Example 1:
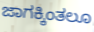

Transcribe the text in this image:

ಜಾಗಕ್ಕಿಂತಲೂ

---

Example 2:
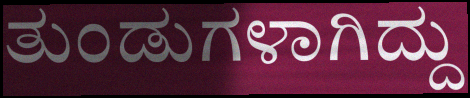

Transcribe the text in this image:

ತುಂಡುಗಳಾಗಿದ್ದು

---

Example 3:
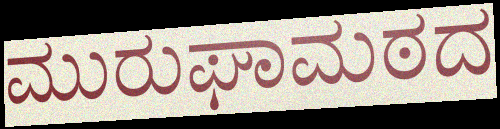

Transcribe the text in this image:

ಮುರುಘಾಮಠದ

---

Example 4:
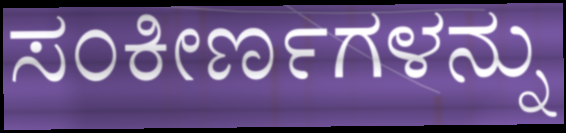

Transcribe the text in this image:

ಸಂಕೀರ್ಣಗಳನ್ನು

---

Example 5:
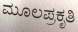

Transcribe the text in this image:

ಮೂಲಪ್ರಕೃತಿ